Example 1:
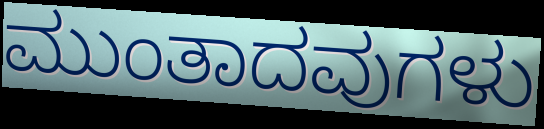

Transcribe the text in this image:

ಮುಂತಾದವುಗಳು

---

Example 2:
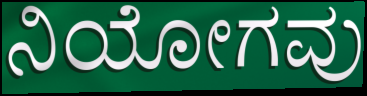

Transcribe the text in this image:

ನಿಯೋಗವು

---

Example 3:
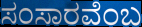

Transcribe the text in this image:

ಸಂಸಾರವೆಂಬ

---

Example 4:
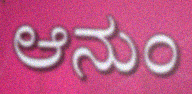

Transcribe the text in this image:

ಆನುಂ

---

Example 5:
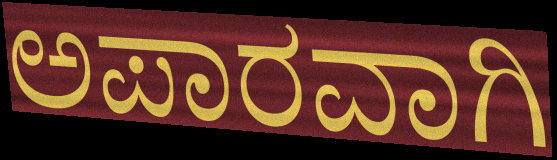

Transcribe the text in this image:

ಅಪಾರವಾಗಿ